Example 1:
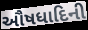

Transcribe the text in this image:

ઔષધાદિની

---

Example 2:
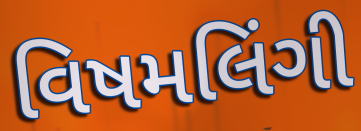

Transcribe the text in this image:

વિષમલિંગી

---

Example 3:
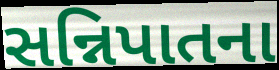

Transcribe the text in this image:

સન્નિપાતના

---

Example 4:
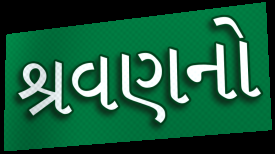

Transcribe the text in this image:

શ્રવણનો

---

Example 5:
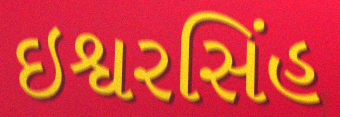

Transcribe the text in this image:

ઇશ્વરસિંહ